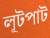
লূটপাট